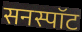
सनस्पॉट